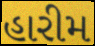
હારીમ